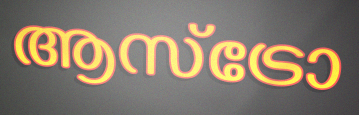
ആസ്ട്രോ